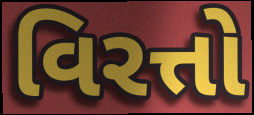
વિરત્તો